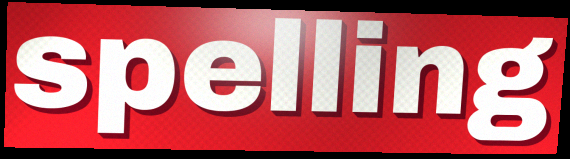
spelling